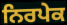
ਨਿਰਪੇਕ